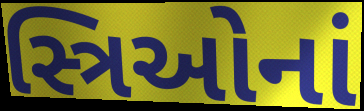
સ્ત્રિઓનાં